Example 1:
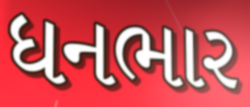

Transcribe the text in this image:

ધનભાર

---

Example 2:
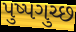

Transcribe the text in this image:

પુષ્પગુચ્છ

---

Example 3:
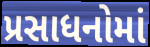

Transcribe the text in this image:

પ્રસાધનોમાં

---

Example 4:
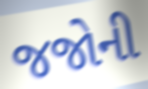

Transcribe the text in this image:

જજોની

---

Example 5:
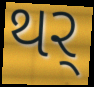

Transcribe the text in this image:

થર્